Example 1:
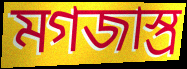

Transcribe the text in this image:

মগজাস্ত্র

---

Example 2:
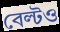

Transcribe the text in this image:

বেল্টও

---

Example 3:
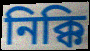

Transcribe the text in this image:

নিক্কি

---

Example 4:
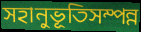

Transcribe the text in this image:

সহানুভূতিসম্পন্ন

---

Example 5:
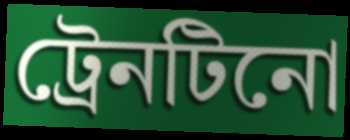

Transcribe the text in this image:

ট্রেনটিনো